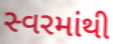
સ્વરમાંથી